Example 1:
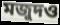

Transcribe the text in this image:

মজুদও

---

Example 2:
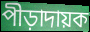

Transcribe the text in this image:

পীড়াদায়ক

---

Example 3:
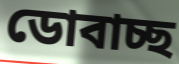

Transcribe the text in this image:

ডোবাচ্ছ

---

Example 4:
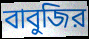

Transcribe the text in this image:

বাবুজির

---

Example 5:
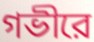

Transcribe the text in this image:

গভীরে